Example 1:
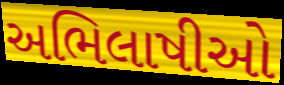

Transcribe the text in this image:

અભિલાષીઓ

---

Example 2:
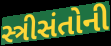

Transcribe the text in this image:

સ્ત્રીસંતોની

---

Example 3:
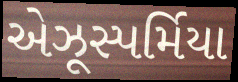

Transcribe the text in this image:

એઝૂસ્પર્મિયા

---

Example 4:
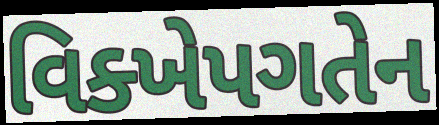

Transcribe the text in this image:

વિક્ખેપગતેન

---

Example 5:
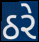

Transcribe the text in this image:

ઠરે